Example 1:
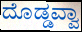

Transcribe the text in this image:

ದೊಡ್ಡವ್ವಾ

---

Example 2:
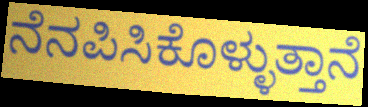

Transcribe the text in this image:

ನೆನಪಿಸಿಕೊಳ್ಳುತ್ತಾನೆ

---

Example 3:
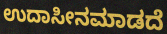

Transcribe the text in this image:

ಉದಾಸೀನಮಾಡದೆ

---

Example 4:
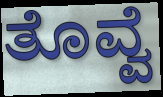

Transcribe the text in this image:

ತೊವ್ವೆ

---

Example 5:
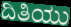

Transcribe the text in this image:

ದಿತಿಯು